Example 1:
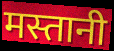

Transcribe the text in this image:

मस्‍तानी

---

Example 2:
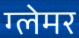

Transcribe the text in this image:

ग्लेमर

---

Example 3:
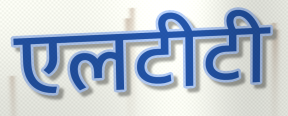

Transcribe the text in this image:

एलटीटी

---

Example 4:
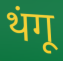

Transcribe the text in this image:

थंगू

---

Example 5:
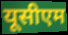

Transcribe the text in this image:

यूसीएम